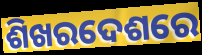
ଶିଖରଦେଶରେ